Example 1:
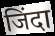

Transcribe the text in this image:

जिंदा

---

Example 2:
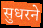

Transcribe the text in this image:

सुधरने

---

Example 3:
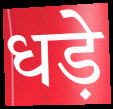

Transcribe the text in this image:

धड़े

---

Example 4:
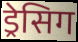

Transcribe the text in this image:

ड्रेसिग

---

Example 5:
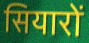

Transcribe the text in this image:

सियारों